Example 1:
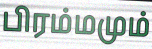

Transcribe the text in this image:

பிரம்மமும்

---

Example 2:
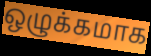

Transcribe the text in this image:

ஒழுக்கமாக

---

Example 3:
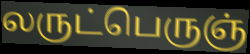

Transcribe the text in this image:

லருட்பெருஞ்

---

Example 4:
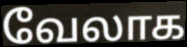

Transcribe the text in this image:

வேலாக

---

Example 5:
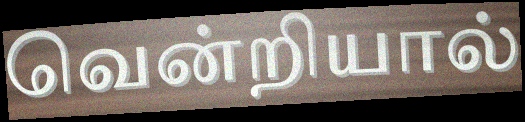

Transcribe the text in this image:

வென்றியால்